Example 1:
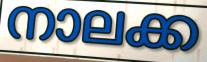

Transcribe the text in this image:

നാലക്ക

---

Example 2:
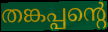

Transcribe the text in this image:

തങ്കപ്പന്റെ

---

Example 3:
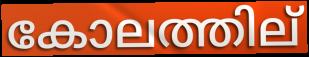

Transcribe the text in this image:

കോലത്തില്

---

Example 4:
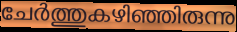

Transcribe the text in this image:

ചേർത്തുകഴിഞ്ഞിരുന്നു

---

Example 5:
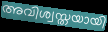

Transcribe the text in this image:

അവിശ്വസ്തയായി